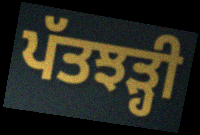
ਪੱਤਝੜ੍ਹੀ